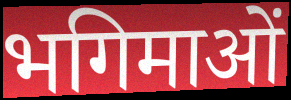
भगिमाओं